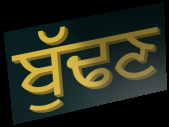
ਬੁੱਢਣ